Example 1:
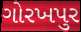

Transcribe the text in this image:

ગોરખપુર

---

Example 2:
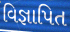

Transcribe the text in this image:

વિજ્ઞાપિત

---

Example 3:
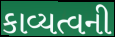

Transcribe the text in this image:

કાવ્યત્વની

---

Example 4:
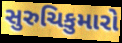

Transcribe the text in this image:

સુરુચિકુમારો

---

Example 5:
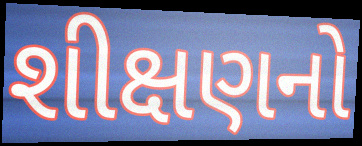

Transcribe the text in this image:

શીક્ષણનો